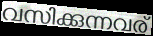
വസിക്കുന്നവര്